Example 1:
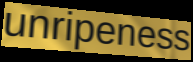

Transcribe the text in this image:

unripeness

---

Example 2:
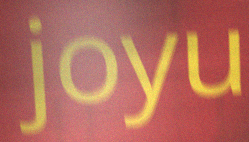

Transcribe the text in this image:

joyu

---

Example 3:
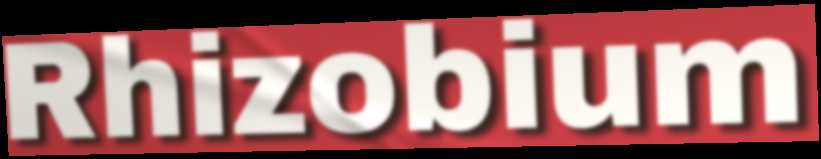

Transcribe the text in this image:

Rhizobium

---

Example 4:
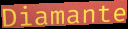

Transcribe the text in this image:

Diamante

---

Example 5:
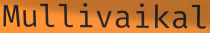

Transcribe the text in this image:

Mullivaikal